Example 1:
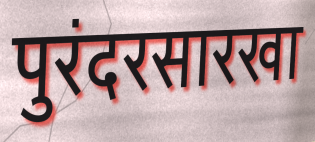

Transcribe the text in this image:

पुरंदरसारखा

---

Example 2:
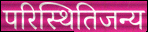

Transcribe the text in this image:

परिस्थितिजन्य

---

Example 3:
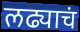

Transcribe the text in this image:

लढ्याचं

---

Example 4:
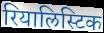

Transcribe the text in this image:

रियालिस्टिक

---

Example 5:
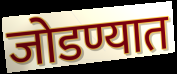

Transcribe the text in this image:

जोडण्यात